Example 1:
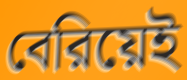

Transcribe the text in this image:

বেরিয়েই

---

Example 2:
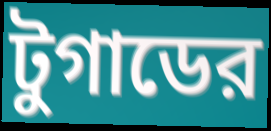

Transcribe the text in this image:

টুগাডের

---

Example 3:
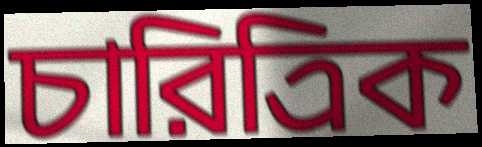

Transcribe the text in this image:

চারিত্রিক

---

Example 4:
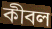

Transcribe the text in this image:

কীবল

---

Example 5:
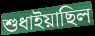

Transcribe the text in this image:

শুধাইয়াছিল